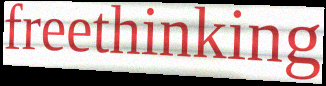
freethinking